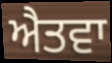
ਐਤਵਾ